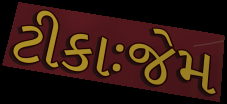
ટીકાઃજેમ